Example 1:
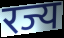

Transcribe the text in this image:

रज्य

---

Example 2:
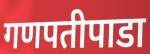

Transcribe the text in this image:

गणपतीपाडा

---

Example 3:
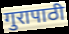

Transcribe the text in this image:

गुरापाठी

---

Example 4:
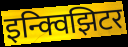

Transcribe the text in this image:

इन्क्विझिटर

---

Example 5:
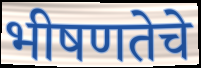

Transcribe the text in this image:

भीषणतेचे